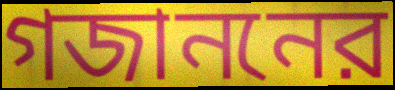
গজাননের